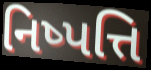
નિષ્પત્તિ